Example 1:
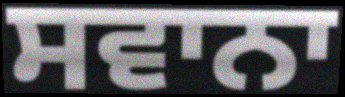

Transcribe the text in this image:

ਸਵਾਨਾ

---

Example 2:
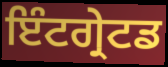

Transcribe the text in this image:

ਇੰਟਗ੍ਰੇਟਡ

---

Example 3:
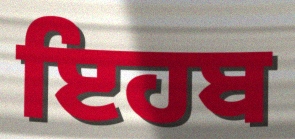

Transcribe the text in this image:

ਇਹਬ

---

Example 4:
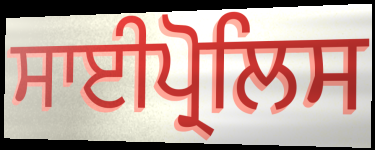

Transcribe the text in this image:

ਸਾਈਪ੍ਰੋਲਿਸ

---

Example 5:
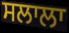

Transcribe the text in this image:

ਸਲਾਲਾ